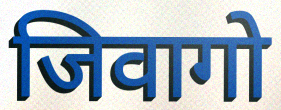
जिवागो